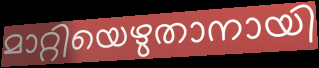
മാറ്റിയെഴുതാനായി